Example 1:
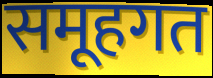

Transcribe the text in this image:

समूहगत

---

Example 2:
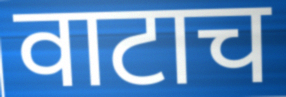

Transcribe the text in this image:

वाटाच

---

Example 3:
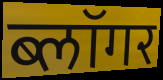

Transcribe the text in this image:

ब्लॉगर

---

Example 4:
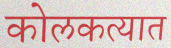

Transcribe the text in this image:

कोलकत्यात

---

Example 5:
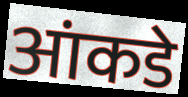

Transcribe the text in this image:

आंकडे